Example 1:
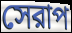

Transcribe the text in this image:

সেরাপ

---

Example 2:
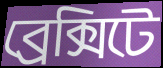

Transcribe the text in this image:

ব্রেক্সিটে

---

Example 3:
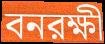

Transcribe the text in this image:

বনরক্ষী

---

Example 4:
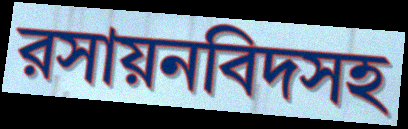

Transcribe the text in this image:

রসায়নবিদসহ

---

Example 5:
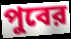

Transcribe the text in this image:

পুবের